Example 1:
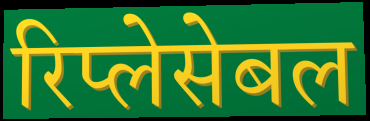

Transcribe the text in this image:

रिप्लेसेबल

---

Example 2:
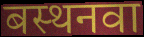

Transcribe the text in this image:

बस्थनवा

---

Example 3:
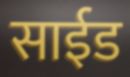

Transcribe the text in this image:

साईड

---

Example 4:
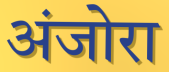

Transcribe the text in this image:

अंजोरा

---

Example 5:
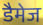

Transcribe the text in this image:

डैमेज